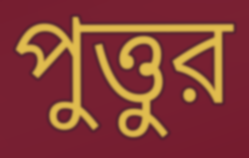
পুত্তুর